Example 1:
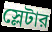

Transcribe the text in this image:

স্লেটার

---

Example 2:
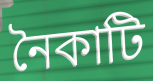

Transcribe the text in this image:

নৈকাটি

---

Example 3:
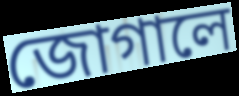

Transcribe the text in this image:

জোগালে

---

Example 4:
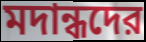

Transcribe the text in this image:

মদান্ধদের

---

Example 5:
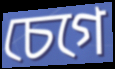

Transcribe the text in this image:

চেগে